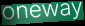
oneway